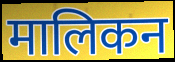
मालिकन